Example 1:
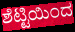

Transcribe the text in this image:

ಶೆಟ್ಟಿಯಿಂದ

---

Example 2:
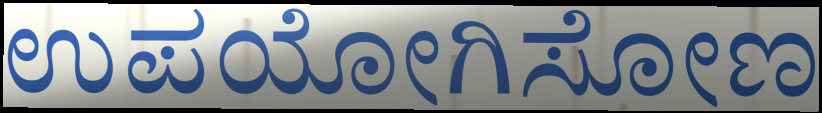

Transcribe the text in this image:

ಉಪಯೋಗಿಸೋಣ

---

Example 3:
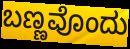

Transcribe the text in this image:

ಬಣ್ಣವೊಂದು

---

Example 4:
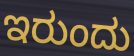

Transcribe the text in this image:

ಇರುಂದು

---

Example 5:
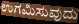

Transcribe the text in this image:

ಉಗಮಿಸುವುದು